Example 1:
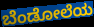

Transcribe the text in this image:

ಬೆಂಡೋಲೆಯ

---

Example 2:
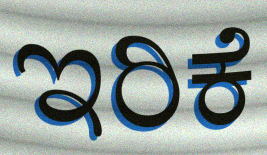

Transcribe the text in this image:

ಇರಿಕೆ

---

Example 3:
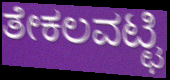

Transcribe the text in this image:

ತೇಕಲವಟ್ಟಿ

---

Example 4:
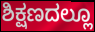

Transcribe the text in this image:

ಶಿಕ್ಷಣದಲ್ಲೂ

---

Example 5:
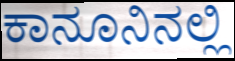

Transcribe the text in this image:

ಕಾನೂನಿನಲ್ಲಿ